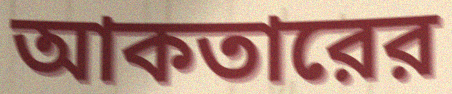
আকতারের